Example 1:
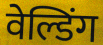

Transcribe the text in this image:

वेल्डिंग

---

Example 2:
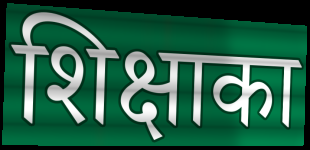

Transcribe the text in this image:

शिक्षाका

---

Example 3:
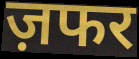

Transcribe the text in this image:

ज़फर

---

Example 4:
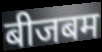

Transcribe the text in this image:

बीजबम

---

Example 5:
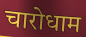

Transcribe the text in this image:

चारोधाम